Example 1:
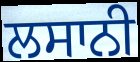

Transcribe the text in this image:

ਲਸਾਨੀ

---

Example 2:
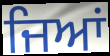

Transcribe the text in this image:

ਜਿਆਂ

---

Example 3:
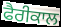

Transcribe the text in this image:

ਫੈਰੀਕਾਲ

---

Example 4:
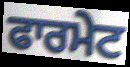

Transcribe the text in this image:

ਫਾਰਮੇਟ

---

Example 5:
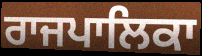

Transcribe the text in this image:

ਰਾਜਪਾਲਿਕਾ